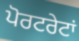
ਪੋਰਟਰੇਟਾਂ